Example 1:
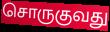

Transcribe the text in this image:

சொருகுவது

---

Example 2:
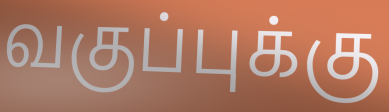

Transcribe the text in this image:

வகுப்புக்கு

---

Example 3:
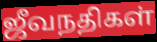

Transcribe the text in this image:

ஜீவநதிகள்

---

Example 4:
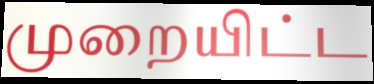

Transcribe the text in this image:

முறையிட்ட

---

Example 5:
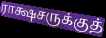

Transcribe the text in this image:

ராக்ஷசருக்குத்